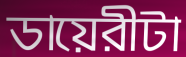
ডায়েরীটা